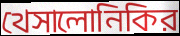
থেসালোনিকির